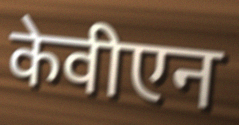
केवीएन